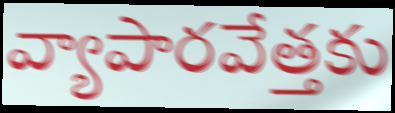
వ్యాపారవేత్తకు